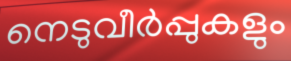
നെടുവീർപ്പുകളും